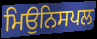
ਮਿਉਨਿਸਪਲ